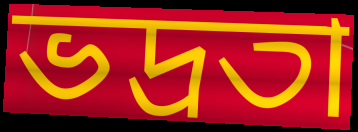
ভদ্রতা